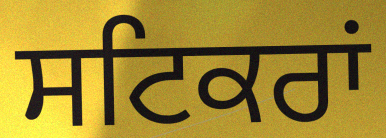
ਸਟਿਕਰਾਂ